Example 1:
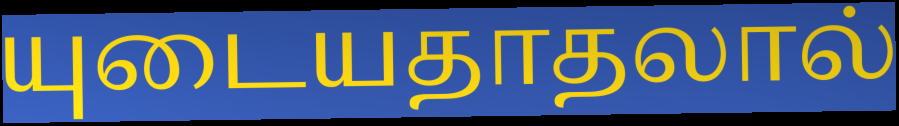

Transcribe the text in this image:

யுடையதாதலால்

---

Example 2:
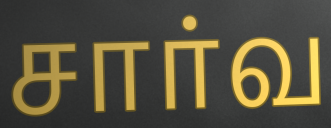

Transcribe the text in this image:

சார்வ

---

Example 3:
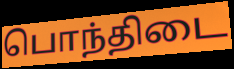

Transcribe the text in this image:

பொந்திடை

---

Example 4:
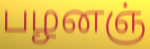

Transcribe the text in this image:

பழனஞ்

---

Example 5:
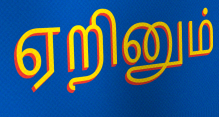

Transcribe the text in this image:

ஏறினும்